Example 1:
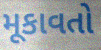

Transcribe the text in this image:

મૂકાવતો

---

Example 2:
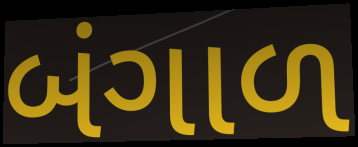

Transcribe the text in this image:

બંગાળ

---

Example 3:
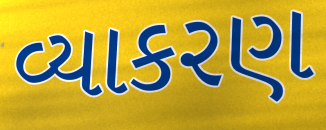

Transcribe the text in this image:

વ્યાકરણ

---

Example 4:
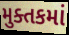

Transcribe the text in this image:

મુક્તકમાં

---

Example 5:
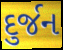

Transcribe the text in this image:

દુર્જન